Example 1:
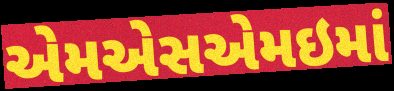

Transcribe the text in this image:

એમએસએમઇમાં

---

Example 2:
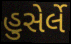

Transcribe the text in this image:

હુસેર્લે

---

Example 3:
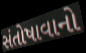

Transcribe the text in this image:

સંતોષાવાનો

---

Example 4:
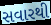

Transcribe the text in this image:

સવારથી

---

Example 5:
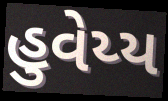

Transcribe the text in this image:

હુવેય્ય